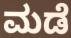
ಮಡೆ